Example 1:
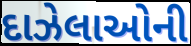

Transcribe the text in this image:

દાઝેલાઓની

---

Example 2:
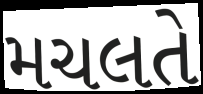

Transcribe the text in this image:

મચલતે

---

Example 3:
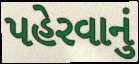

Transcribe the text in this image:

પહેરવાનું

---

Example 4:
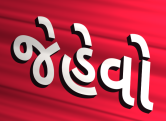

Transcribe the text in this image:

જેહેવો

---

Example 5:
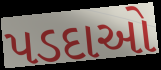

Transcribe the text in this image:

પડદાઓ